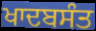
ਖਾਦਬਸੰਤ